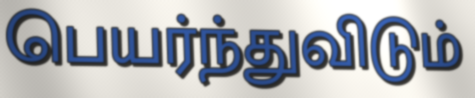
பெயர்ந்துவிடும்